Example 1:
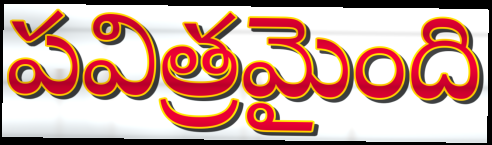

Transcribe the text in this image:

పవిత్రమైంది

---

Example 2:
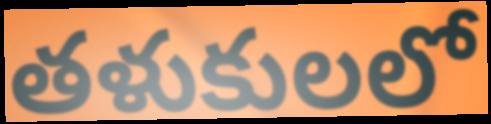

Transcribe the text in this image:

తళుకులలో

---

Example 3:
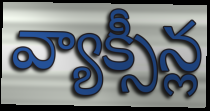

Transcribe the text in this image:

వ్యాక్సీన్ల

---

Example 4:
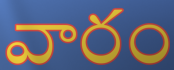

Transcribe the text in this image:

వారం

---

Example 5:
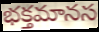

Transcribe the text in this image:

భక్తమానస